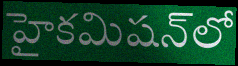
హైకమిషన్‌లో